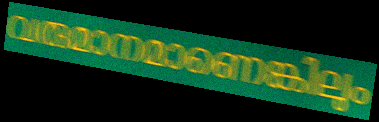
വരുമാനമാണെങ്കിലും